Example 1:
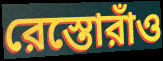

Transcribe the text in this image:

রেস্তোরাঁও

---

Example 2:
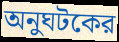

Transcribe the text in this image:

অনুঘটকের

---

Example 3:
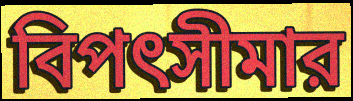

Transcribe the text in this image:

বিপৎসীমার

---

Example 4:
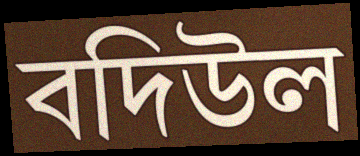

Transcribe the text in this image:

বদিউল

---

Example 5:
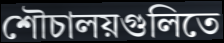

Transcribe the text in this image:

শৌচালয়গুলিতে